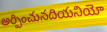
అర్పించునదియనియో